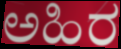
ಅಹಿರ